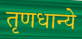
तृणधान्ये